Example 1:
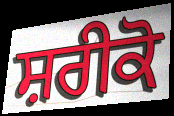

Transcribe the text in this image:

ਸ਼ਰੀਕੋ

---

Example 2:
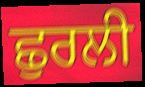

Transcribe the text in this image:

ਛੁਰਲੀ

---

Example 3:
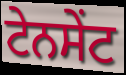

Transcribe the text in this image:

ਟੇਨਸੇਂਟ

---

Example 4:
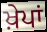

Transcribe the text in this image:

ਖ਼ੇਪਾਂ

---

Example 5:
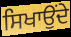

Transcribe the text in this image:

ਸਿਖਾਉਂਦੇ